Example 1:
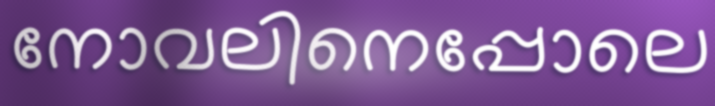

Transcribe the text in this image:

നോവലിനെപ്പോലെ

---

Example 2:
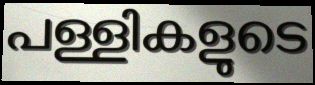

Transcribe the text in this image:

പള്ളികളുടെ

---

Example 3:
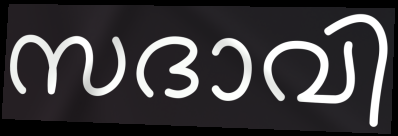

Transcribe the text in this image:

സദാവി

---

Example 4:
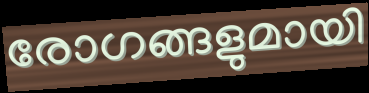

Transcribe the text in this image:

രോഗങ്ങളുമായി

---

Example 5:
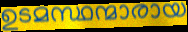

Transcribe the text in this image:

ഉടമസ്ഥന്മാരായ